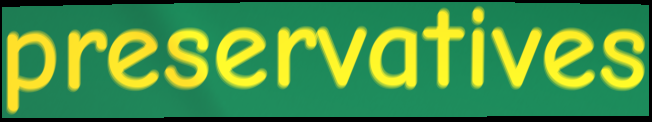
preservatives